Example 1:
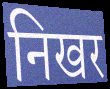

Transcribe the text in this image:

निखर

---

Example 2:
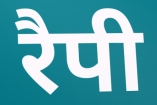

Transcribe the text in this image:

रैपी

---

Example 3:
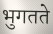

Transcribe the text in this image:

भुगतते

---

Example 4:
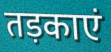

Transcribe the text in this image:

तड़काएं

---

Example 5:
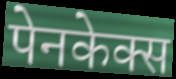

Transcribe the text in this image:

पेनकेक्स